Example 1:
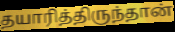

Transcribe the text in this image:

தயாரித்திருந்தான்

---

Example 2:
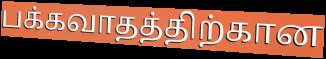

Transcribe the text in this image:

பக்கவாதத்திற்கான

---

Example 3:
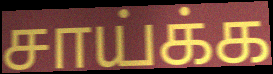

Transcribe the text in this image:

சாய்க்க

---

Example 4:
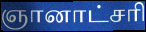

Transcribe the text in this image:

ஞானாட்சரி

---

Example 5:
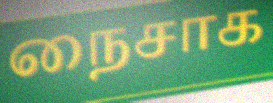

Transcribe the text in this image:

நைசாக